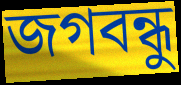
জগবন্ধু